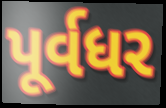
પૂર્વધર